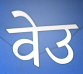
वेउ